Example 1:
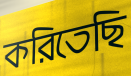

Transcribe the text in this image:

করিতেছি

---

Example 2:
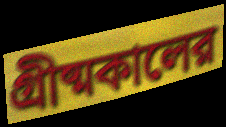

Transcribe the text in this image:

গ্রীষ্মকালের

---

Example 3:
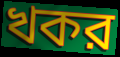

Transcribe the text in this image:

খকর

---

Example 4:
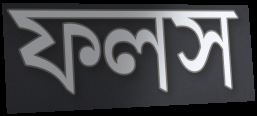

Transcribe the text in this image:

ফলস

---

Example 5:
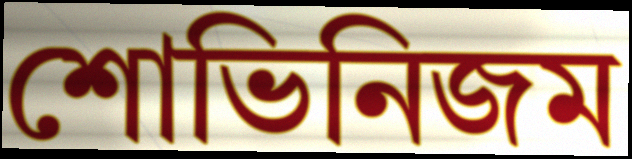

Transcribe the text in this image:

শোভিনিজম